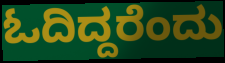
ಓದಿದ್ದರೆಂದು